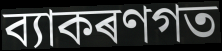
ব্যাকৰণগত